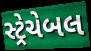
સ્ટ્રેચેબલ